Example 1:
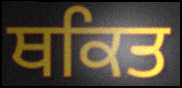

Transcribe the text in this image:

ਥਕਿਤ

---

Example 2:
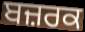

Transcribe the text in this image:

ਬਜ਼ਰਕ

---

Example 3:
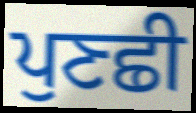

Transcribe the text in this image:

ਪੁਣਛੀ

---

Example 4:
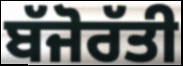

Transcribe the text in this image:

ਬੱਜੋਰੱਤੀ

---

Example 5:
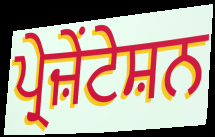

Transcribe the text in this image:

ਪ੍ਰੇਜ਼ੇਂਟੇਸ਼ਨ